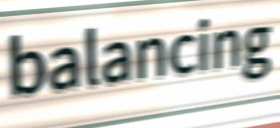
balancing